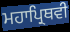
ਮਹਾਪ੍ਰਿਥਵੀ